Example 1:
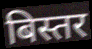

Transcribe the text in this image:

बिस्तर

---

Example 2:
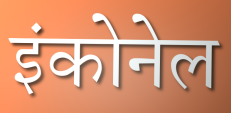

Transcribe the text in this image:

इंकोनेल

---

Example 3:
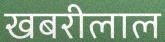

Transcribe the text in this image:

खबरीलाल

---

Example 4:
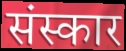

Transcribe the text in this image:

संस्कार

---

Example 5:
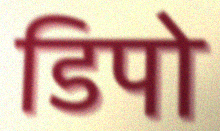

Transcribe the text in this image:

डिपो